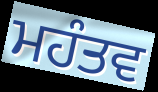
ਮਹੰਤਵ